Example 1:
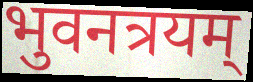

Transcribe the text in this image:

भुवनत्रयम्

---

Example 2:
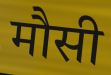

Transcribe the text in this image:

मौसी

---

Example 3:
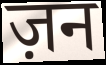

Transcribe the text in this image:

ज़न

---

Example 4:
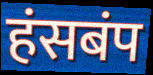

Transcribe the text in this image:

हंसबंप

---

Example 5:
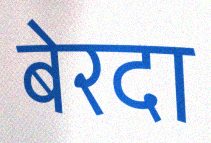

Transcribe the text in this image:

बेरदा